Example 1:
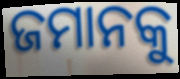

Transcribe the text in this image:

ଜମାନକୁ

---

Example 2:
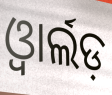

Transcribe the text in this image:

ଓ୍ୱାର୍ଲଡ଼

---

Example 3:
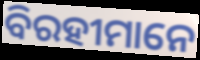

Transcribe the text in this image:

ବିରହୀମାନେ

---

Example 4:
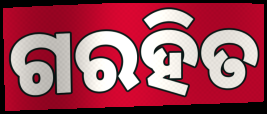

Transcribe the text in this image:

ଗରହିତ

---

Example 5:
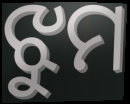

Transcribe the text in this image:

ଝୁମ